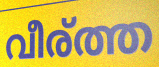
വീര്ത്ത